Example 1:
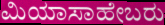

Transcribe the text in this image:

ಮಿಯಾಸಾಹೇಬರು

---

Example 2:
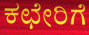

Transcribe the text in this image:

ಕಛೇರಿಗೆ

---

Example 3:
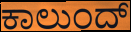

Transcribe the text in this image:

ಕಾಲುಂದ್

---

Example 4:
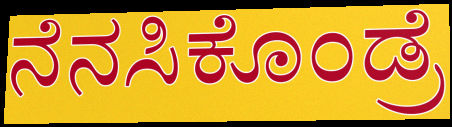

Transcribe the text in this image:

ನೆನಸಿಕೊಂಡ್ರೆ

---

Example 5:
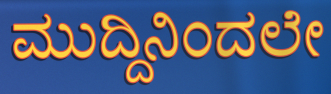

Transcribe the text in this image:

ಮುದ್ದಿನಿಂದಲೇ